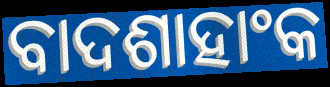
ବାଦଶାହାଂକ